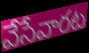
వేసేవారట